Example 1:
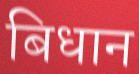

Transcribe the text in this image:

बिधान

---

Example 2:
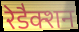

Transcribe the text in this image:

रेडैक्शन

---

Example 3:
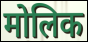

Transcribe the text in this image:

मोलिक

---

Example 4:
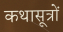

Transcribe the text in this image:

कथासूत्रों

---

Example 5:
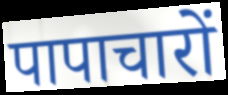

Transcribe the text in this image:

पापाचारों